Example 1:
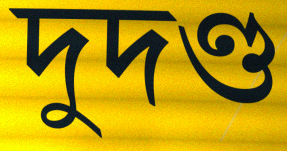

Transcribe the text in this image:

দুদণ্ড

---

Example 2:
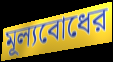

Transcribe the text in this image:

মূল্যবোধের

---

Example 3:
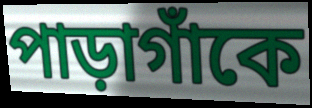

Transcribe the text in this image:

পাড়াগাঁকে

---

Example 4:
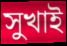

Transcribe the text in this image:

সুখাই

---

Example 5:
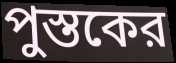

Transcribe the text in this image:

পুস্তকের